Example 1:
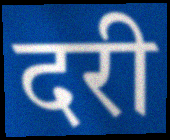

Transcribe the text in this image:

दरी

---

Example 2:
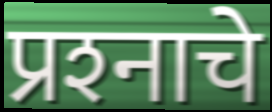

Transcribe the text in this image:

प्रश्‍नाचे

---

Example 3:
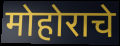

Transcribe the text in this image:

मोहोराचे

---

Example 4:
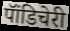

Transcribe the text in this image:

पॉंडिचेरी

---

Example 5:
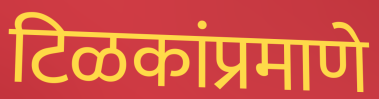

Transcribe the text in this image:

टिळकांप्रमाणे